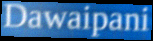
Dawaipani